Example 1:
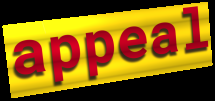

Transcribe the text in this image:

appeal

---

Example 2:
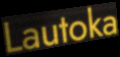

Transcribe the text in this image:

Lautoka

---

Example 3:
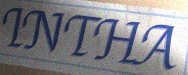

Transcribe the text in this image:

INTHA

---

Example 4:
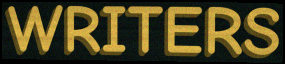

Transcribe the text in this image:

WRITERS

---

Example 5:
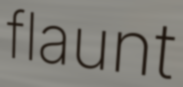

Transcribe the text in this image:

flaunt